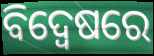
ବିଦ୍ୱେଷରେ